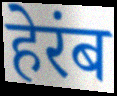
हेरंब